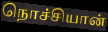
நொச்சியான்